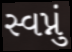
સ્વપ્નું